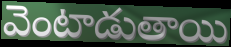
వెంటాడుతాయి